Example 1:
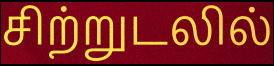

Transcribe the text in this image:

சிற்றுடலில்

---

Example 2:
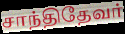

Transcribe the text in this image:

சாந்திதேவர்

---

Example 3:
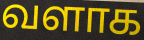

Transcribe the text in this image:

வளாக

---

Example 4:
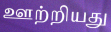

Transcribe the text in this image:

ஊற்றியது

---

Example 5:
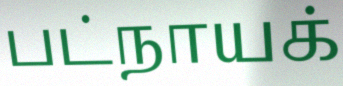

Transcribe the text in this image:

பட்நாயக்